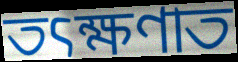
তৎক্ষণাত